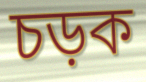
চড়ক